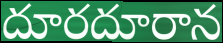
దూరదూరాన